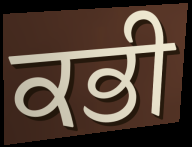
ਕਭੀ